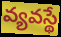
వ్యవస్థే